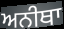
ਅਨੀਥਾ